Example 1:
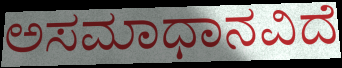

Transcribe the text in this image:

ಅಸಮಾಧಾನವಿದೆ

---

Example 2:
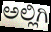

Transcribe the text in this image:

ಅಲ್ಲಿಗಿ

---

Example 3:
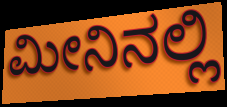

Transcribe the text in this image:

ಮೀನಿನಲ್ಲಿ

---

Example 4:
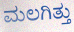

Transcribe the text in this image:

ಮಲಗಿತ್ತು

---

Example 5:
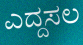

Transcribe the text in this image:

ಎದ್ದಸಲ